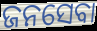
ଜନସେବା